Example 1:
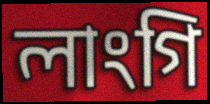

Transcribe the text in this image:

লাংগি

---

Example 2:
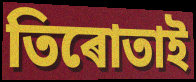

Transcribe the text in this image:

তিৰোতাই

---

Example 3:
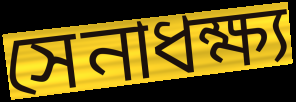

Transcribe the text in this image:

সেনাধক্ষ্য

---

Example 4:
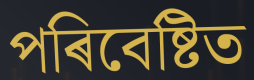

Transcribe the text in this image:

পৰিবেষ্টিত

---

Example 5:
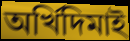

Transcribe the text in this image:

অৰ্খিদিমাই